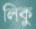
লিকু